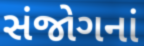
સંજોગનાં